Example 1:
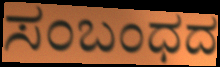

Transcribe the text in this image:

ಸಂಬಂಧದ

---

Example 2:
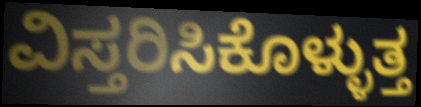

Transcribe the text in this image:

ವಿಸ್ತರಿಸಿಕೊಳ್ಳುತ್ತ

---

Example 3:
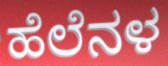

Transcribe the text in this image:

ಹೆಲೆನಳ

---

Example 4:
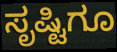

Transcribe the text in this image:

ಸೃಷ್ಟಿಗೂ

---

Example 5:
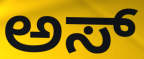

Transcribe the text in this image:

ಅಸ್